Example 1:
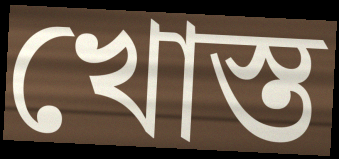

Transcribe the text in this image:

খোস্ত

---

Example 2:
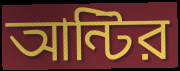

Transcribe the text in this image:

আন্টির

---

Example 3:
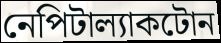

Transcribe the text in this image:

নেপিটাল্যাকটোন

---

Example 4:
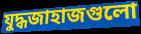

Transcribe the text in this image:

যুদ্ধজাহাজগুলো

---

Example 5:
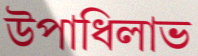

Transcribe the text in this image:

উপাধিলাভ